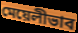
মেয়েলীভাব